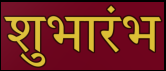
शुभारंभ